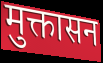
मुक्तासन